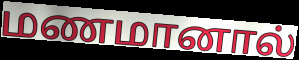
மணமானால்